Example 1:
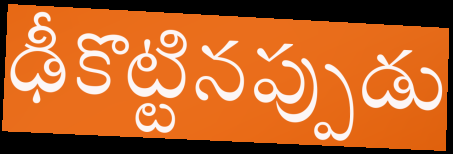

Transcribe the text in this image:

ఢీకొట్టినప్పుడు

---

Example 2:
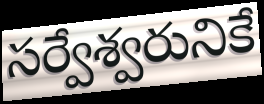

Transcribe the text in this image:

సర్వేశ్వరునికే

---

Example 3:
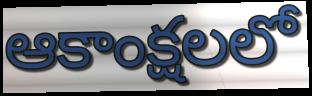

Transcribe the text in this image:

ఆకాంక్షలలో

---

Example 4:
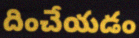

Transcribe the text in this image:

దించేయడం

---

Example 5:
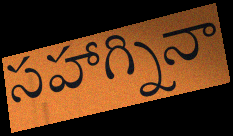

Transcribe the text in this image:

సహాగ్నినా